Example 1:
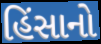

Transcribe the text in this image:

હિંસાનો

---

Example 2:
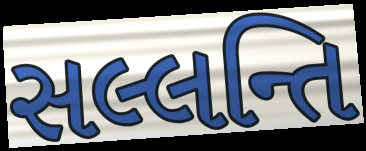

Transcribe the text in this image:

સલ્લન્તિ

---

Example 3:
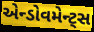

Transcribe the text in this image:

એન્ડોવમેન્ટ્સ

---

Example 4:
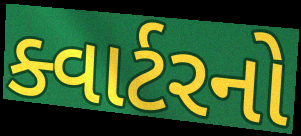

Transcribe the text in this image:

ક્વાર્ટરનો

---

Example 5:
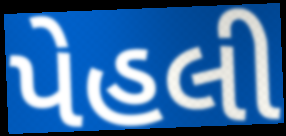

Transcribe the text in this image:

પેહલી